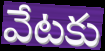
వేటకు